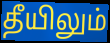
தீயிலும்